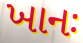
ખાનઃ